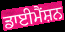
ਡਾਈਮੈਂਸ਼ਨ